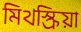
মিথস্ক্রিয়া